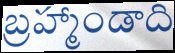
బ్రహ్మాండాది